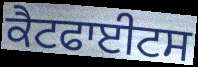
ਕੈਟਫਾਈਟਸ